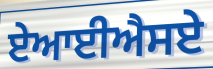
ਏਆਈਐਸਏ